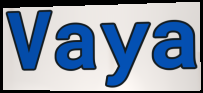
Vaya